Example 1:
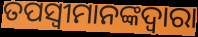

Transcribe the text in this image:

ତପସ୍ୱୀମାନଙ୍କଦ୍ୱାରା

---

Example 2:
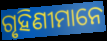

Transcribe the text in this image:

ଗୃହିଣୀମାନେ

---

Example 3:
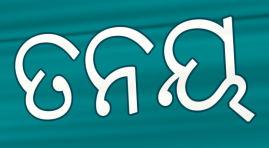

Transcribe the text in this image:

ତନୟ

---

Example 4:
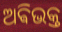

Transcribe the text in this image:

ଅଵିଭକ୍ତ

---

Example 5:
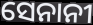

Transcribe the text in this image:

ସେନାନୀ